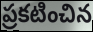
ప్రకటించిన